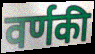
वर्णकी